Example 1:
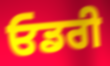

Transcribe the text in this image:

ਓਡਰੀ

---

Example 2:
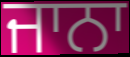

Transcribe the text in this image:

ਜਾਨਾ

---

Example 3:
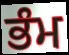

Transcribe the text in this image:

ਭੰਮ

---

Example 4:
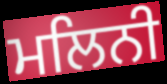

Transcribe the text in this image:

ਮਲਿਨੀ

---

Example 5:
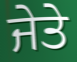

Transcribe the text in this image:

ਜੇਤੇ